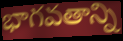
భాగవతాన్ని